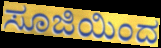
ಸೂಜಿಯಿಂದ